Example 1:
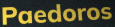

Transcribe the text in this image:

Paedoros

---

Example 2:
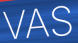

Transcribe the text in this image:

VAS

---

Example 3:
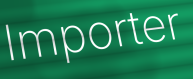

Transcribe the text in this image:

Importer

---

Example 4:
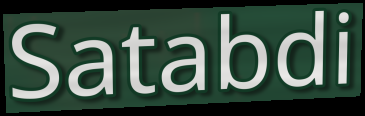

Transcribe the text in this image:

Satabdi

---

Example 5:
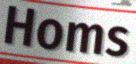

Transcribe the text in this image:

Homs